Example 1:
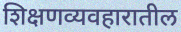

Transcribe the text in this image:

शिक्षणव्यवहारातील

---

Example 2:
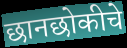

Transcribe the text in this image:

छानछोकीचे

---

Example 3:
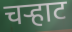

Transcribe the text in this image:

चऱ्हाट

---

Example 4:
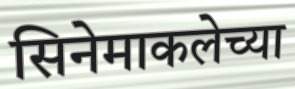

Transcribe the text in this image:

सिनेमाकलेच्या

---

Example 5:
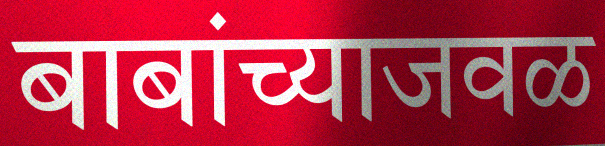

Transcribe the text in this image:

बाबांच्याजवळ